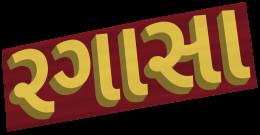
રગાસા